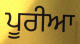
ਪੂਰੀਆ